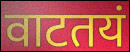
वाटतयं